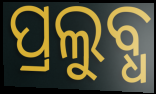
ପ୍ରଲୁବ୍ଧ